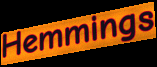
Hemmings